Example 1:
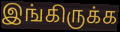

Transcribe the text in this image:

இங்கிருக்க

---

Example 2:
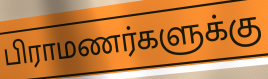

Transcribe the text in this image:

பிராமணர்களுக்கு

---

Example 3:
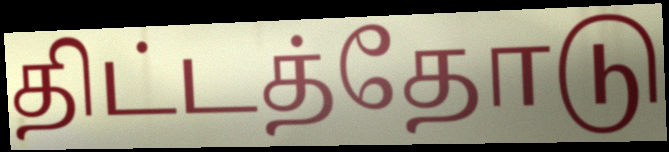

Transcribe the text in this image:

திட்டத்தோடு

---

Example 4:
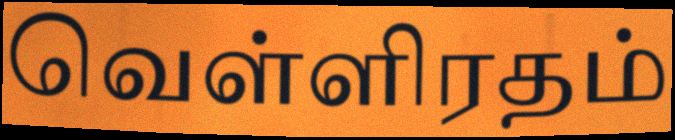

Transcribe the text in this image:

வெள்ளிரதம்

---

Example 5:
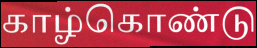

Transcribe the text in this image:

காழ்கொண்டு